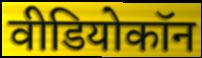
वीडियोकॉन